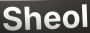
Sheol